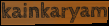
kainkaryam